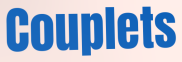
Couplets